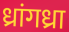
ध्रांगध्रा